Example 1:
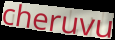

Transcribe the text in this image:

cheruvu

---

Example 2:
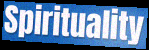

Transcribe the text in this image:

Spirituality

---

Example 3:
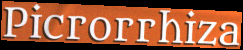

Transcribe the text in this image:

Picrorrhiza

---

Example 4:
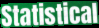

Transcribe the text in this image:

Statistical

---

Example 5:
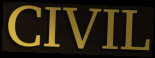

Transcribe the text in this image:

CIVIL